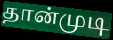
தான்முடி